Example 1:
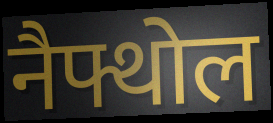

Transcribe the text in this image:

नैफ्थोल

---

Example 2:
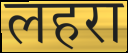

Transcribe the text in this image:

लहरा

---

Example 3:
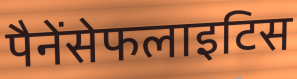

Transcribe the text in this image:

पैनेंसेफलाइटिस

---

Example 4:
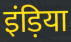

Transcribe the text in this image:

इंड़िया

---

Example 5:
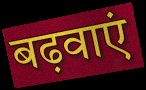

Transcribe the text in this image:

बढ़वाएं